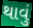
થાવું